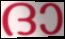
ദാ